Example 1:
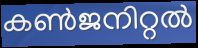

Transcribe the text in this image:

കൺജനിറ്റൽ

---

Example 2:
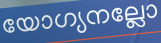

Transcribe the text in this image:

യോഗ്യനല്ലോ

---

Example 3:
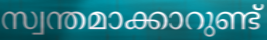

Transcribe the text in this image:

സ്വന്തമാക്കാറുണ്ട്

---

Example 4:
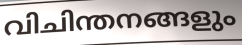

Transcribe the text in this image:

വിചിന്തനങ്ങളും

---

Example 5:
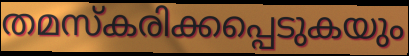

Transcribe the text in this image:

തമസ്കരിക്കപ്പെടുകയും